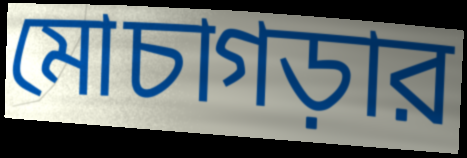
মোচাগড়ার